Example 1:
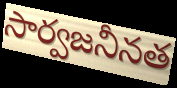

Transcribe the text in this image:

సార్వజనీనత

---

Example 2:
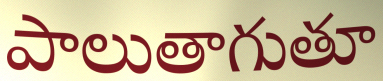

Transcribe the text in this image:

పాలుతాగుతూ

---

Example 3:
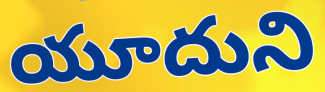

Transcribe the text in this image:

యూదుని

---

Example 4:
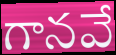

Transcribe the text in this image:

గానవే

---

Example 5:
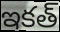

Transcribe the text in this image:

ఇకత్